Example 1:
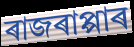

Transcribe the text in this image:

ৰাজৰাপ্পাৰ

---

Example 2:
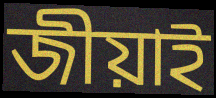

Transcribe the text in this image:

জীয়াই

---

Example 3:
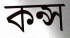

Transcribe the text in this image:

কন্স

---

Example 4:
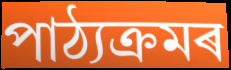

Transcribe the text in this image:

পাঠ্যক্ৰমৰ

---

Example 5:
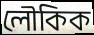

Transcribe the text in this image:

লৌকিক